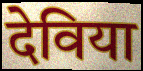
देविया